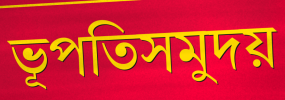
ভূপতিসমুদয়